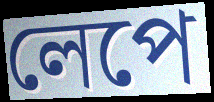
লেপে